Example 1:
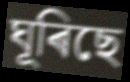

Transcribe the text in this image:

ঘূৰিছে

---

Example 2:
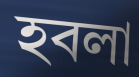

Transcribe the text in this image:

হবলা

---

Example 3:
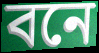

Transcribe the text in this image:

বনে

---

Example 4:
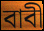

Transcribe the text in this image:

বাবী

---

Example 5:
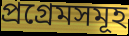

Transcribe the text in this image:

প্ৰগ্ৰেমসমূহ